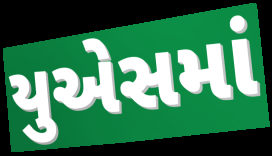
યુએસમાં